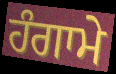
ਹੰਗਾਮੇ